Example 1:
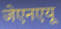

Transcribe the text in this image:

जेएनएयू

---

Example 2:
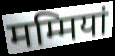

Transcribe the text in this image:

मम्मियां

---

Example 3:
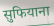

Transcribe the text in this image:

सुफियाना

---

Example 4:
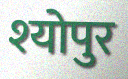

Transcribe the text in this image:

श्‍योपुर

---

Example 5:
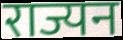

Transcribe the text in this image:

राज्यन